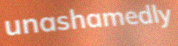
unashamedly